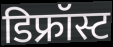
डिफ्रॉस्ट